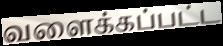
வளைக்கப்பட்ட